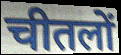
चीतलों